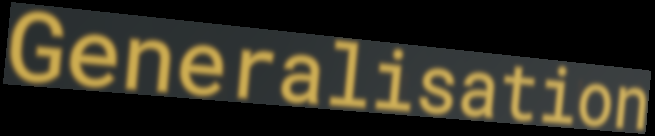
Generalisation